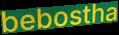
bebostha